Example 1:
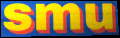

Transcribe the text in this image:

smu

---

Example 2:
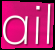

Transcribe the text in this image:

ail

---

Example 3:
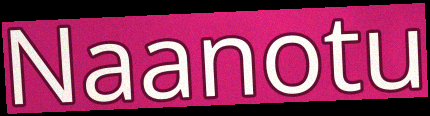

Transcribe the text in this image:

Naanotu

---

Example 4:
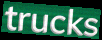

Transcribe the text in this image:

trucks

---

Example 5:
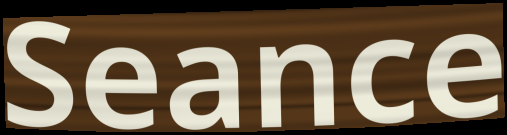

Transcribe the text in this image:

Seance